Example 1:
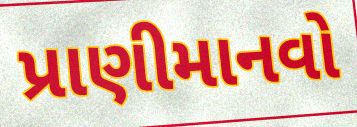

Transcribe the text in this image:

પ્રાણીમાનવો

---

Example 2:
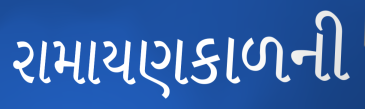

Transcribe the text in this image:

રામાયણકાળની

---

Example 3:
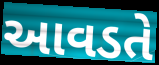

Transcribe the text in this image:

આવડતે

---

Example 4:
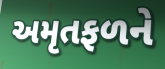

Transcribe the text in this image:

અમૃતફળને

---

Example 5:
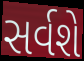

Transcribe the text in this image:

સર્વશે